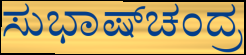
ಸುಭಾಷ್‌ಚಂದ್ರ